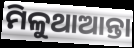
ମିଳୁଥାଆନ୍ତା